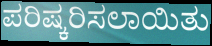
ಪರಿಷ್ಕರಿಸಲಾಯಿತು